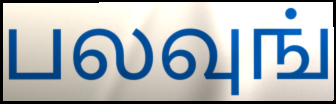
பலவுங்